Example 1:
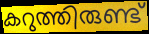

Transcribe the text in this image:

കറുത്തിരുണ്ട്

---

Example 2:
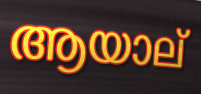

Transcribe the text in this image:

ആയാല്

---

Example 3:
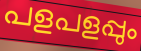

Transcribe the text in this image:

പളപളപ്പും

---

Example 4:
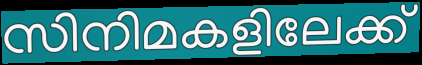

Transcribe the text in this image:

സിനിമകളിലേക്ക്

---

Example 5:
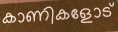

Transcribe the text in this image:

കാണികളോട്